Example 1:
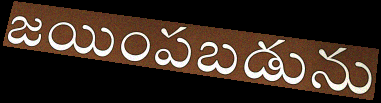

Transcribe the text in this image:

జయింపబడును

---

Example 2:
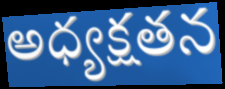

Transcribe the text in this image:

అధ్యక్షతన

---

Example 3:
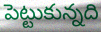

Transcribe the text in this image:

పెట్టుకున్నది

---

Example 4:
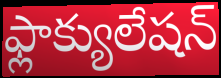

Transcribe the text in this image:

ఫ్లాక్యులేషన్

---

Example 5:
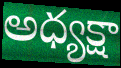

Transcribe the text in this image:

అధ్యక్షా